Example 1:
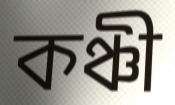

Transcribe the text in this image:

কঞ্চী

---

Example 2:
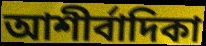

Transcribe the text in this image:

আশীর্বাদিকা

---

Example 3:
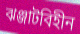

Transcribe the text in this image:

ঝঞ্জাটবিহীন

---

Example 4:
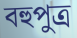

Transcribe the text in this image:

বহুপুত্র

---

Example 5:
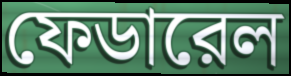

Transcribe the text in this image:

ফেডারেল